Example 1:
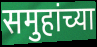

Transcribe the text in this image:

समुहांच्या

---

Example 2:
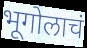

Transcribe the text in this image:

भूगोलाचं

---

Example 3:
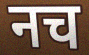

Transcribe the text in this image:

नच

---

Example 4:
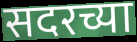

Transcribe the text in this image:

सदरच्या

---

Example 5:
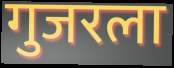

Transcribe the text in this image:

गुजरला